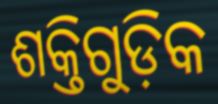
ଶକ୍ତିଗୁଡ଼ିକ